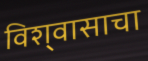
विश्वासाचा